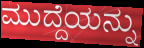
ಮುದ್ದೆಯನ್ನು